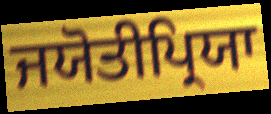
ਜਯੋਤੀਪ੍ਰਿਯਾ